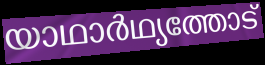
യാഥാർഥ്യത്തോട്